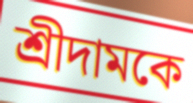
শ্রীদামকে